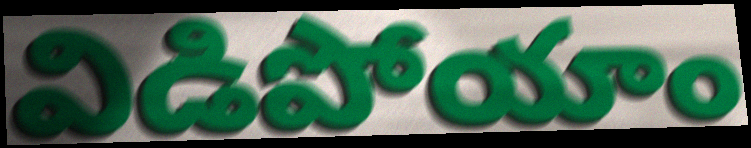
విడిపోయాం